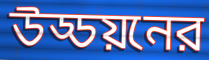
উড্ডয়নের